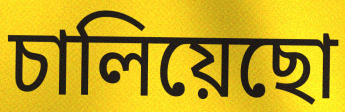
চালিয়েছো